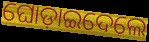
ଘୋଡ଼ାଇଦେଲେ